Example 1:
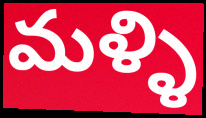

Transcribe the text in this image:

మళ్ళి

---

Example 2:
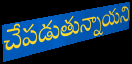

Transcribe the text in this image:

చేపడుతున్నాయని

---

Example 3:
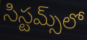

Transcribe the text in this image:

సిస్టమ్స్‌లో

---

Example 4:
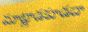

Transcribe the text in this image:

మాట్లాడకూడదా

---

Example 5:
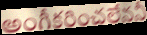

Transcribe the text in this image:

అంగీకరించలేననీ